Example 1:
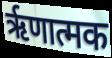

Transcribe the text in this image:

ऋृणात्मक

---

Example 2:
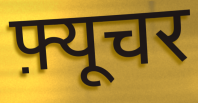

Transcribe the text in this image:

फ़्यूचर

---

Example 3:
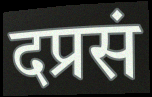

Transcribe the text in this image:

दप्रसं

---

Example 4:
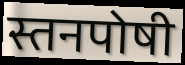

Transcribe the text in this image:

स्तनपोषी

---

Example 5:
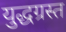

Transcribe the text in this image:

युद्धग्रस्त